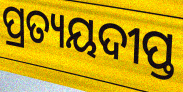
ପ୍ରତ୍ୟୟଦୀପ୍ତ